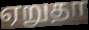
ஏறுதா